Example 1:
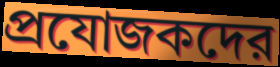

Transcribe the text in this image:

প্রযোজকদের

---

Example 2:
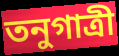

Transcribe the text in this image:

তনুগাত্রী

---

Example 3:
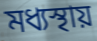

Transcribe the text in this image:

মধ্যস্থায়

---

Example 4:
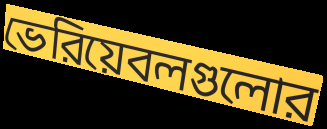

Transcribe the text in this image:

ভেরিয়েবলগুলোর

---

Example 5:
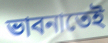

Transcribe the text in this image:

ভাবনাতেই